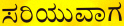
ಸರಿಯುವಾಗ